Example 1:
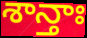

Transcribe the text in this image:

శాన్తాః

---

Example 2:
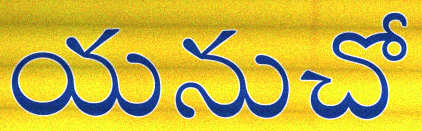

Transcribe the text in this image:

యనుచో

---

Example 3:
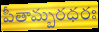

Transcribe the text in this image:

పీతామ్బరధరః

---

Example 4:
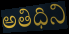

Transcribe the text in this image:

అతిధిని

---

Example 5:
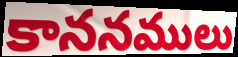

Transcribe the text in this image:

కాననములు